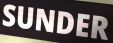
SUNDER